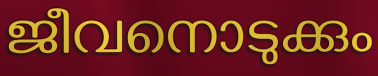
ജീവനൊടുക്കും